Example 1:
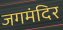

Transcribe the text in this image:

जगमंदिर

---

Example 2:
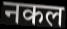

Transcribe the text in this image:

नकल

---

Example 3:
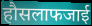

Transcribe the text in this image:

हौसलाफजाई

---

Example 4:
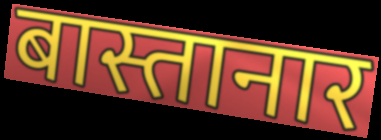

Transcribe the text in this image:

बास्तानार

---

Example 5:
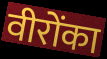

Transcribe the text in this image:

वीरोंका